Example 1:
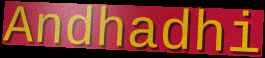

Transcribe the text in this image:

Andhadhi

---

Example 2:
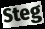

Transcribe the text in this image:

Steg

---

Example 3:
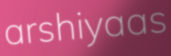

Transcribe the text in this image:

arshiyaas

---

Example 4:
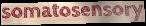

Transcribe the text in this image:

somatosensory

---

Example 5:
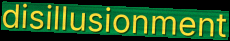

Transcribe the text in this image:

disillusionment